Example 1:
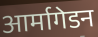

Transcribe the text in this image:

आर्मागेडन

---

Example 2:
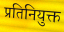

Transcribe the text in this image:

प्रतिनियुक्त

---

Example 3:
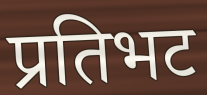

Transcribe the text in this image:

प्रतिभट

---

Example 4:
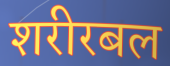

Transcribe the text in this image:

शरीरबल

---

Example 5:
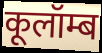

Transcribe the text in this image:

कूलॉम्ब